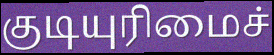
குடியுரிமைச்